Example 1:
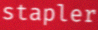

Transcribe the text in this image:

stapler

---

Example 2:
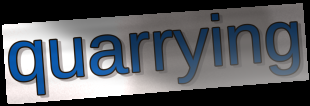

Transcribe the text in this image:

quarrying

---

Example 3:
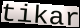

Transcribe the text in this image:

tikar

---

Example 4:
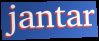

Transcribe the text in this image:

jantar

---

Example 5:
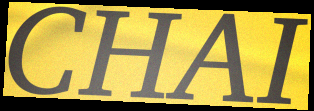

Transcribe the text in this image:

CHAI